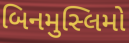
બિનમુસ્લિમો